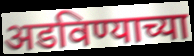
अडविण्याच्या